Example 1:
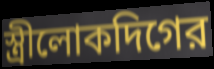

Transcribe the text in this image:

স্ত্রীলোকদিগের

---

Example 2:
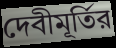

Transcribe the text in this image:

দেবীমূর্তির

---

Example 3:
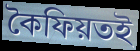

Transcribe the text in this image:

কৈফিয়তই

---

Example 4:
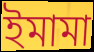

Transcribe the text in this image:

ইমামা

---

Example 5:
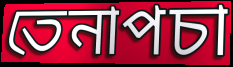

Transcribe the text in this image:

তেনাপচা